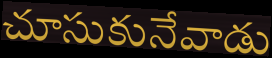
చూసుకునేవాడు